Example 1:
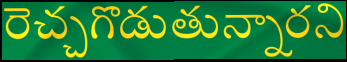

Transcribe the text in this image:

రెచ్చగొడుతున్నారని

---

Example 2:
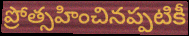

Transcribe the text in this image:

ప్రోత్సహించినప్పటికీ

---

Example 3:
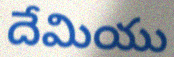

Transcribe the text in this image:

దేమియు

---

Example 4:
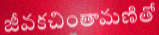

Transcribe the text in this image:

జీవకచింతామణితో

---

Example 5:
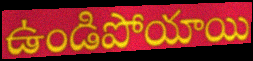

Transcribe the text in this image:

ఉండిపోయాయి